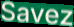
Savez